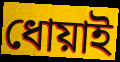
ধোয়াই